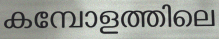
കമ്പോളത്തിലെ